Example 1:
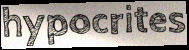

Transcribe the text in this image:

hypocrites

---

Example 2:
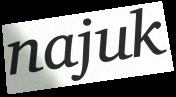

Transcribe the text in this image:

najuk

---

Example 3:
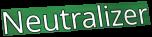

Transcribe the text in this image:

Neutralizer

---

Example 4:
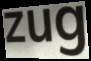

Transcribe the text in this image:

zug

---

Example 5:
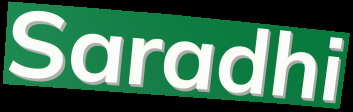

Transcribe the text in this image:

Saradhi